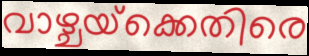
വാഴ്ചയ്‌ക്കെതിരെ